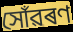
সোঁৱৰণ